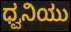
ಧ್ವನಿಯು